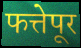
फत्तेपूर